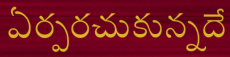
ఏర్పరచుకున్నదే